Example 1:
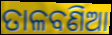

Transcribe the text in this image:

ତାଳବଣିଆ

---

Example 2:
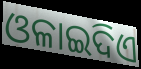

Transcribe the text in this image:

ଓଳାଇଦିଏ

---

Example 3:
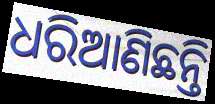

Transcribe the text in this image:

ଧରିଆଣିଛନ୍ତି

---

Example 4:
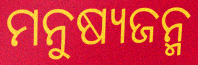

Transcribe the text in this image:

ମନୁଷ୍ୟଜନ୍ମ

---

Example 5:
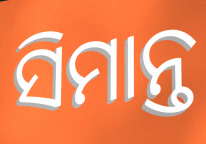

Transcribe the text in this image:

ସିମାନ୍ତ